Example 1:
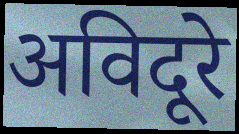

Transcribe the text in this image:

अविदूरे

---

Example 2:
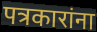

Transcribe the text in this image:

पत्रकारांना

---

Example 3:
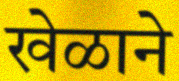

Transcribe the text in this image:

खेळाने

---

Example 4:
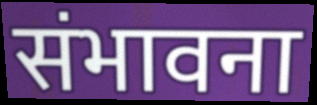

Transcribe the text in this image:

संभावना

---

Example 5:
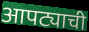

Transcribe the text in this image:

आपट्याची